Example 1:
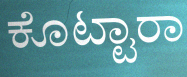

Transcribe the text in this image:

ಕೊಟ್ಟಾರಾ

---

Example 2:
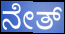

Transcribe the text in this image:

ನೇತ್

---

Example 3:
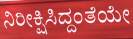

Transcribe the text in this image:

ನಿರೀಕ್ಷಿಸಿದ್ದಂತೆಯೇ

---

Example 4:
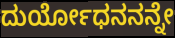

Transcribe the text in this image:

ದುರ್ಯೋಧನನನ್ನೇ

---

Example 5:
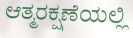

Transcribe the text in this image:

ಆತ್ಮರಕ್ಷಣೆಯಲ್ಲಿ